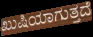
ಖುಷಿಯಾಗುತ್ತದೆ